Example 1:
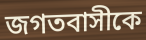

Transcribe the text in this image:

জগতবাসীকে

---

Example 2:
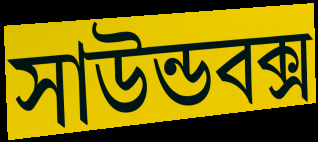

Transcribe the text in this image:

সাউন্ডবক্স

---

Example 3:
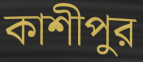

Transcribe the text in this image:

কাশীপুর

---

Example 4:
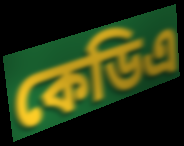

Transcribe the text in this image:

কেডিএ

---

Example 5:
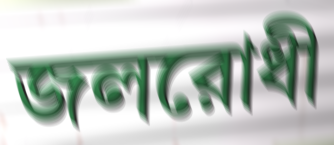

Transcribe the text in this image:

জলরোধী